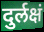
दुर्लक्षं